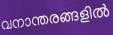
വനാന്തരങ്ങളിൽ